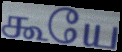
கூயே